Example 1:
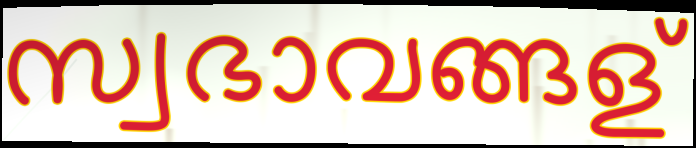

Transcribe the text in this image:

സ്വഭാവങ്ങള്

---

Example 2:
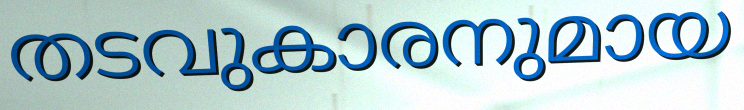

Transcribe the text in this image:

തടവുകാരനുമായ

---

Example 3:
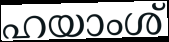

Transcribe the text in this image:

ഹയാംശ്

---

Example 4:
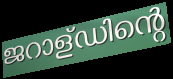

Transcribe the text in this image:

ജറാള്ഡിന്റെ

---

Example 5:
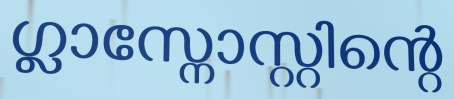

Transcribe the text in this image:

ഗ്ലാസ്നോസ്റ്റിന്റെ